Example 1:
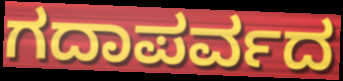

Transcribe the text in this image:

ಗದಾಪರ್ವದ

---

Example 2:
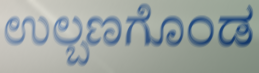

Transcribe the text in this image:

ಉಲ್ಬಣಗೊಂಡ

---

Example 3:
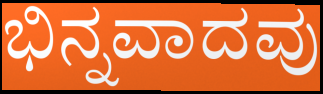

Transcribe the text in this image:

ಭಿನ್ನವಾದವು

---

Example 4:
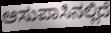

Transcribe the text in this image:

ಆಸುಪಾಸಿನಲ್ಲಿದೆ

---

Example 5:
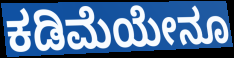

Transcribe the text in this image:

ಕಡಿಮೆಯೇನೂ